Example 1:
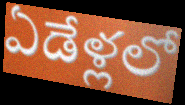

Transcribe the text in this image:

ఏడేళ్లలో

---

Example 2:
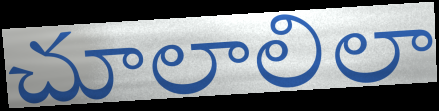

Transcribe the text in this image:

చూలాలిలా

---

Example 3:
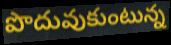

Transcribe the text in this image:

పొదువుకుంటున్న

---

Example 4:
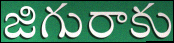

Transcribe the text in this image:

జిగురాకు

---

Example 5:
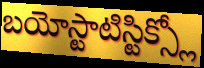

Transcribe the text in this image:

బయోస్టాటిస్టిక్స్లో